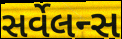
સર્વેલન્સ